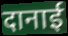
दानाई